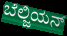
ಬೆಲ್ಜಿಯನ್